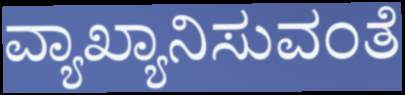
ವ್ಯಾಖ್ಯಾನಿಸುವಂತೆ